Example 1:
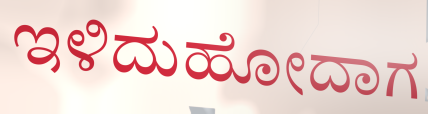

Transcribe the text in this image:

ಇಳಿದುಹೋದಾಗ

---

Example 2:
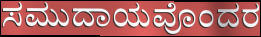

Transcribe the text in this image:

ಸಮುದಾಯವೊಂದರ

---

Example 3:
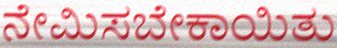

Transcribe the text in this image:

ನೇಮಿಸಬೇಕಾಯಿತು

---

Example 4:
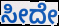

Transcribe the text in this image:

ಸೀದೇ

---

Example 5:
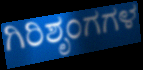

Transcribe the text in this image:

ಗಿರಿಶೃಂಗಗಳ